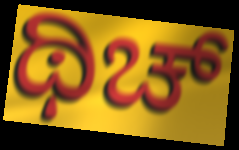
ಥಿಚ್